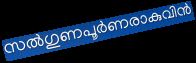
സൽഗുണപൂർണരാകുവിൻ